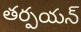
తర్పయన్